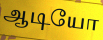
ஆடியோ